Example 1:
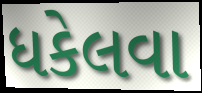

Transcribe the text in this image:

ધકેલવા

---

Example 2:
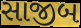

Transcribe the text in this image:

સાજીબ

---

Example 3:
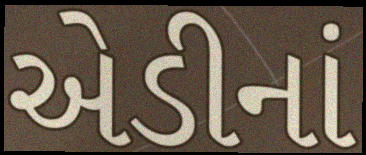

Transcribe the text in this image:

એડીનાં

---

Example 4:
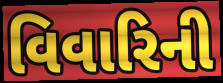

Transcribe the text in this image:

વિવારિની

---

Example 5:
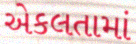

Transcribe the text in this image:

એકલતામાં